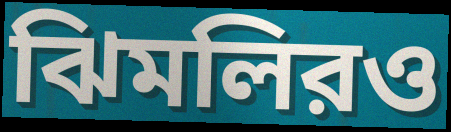
ঝিমলিরও